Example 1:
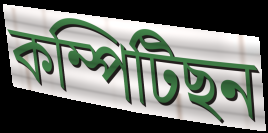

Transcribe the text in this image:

কম্পিটিছন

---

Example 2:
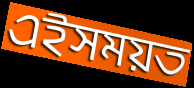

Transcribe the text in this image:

এইসময়ত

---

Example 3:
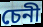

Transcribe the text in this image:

চেনী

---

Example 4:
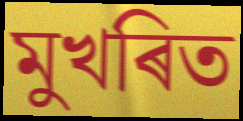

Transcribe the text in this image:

মুখৰিত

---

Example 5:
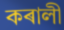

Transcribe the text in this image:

কৰালী